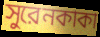
সুরেনকাকা